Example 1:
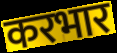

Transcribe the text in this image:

करभार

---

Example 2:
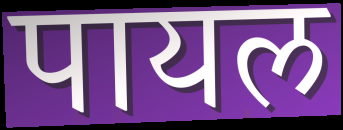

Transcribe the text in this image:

पायल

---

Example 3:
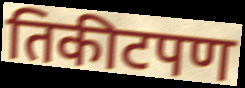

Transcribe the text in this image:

तिकीटपण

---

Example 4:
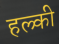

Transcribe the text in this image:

हल्की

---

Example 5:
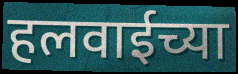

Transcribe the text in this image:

हलवाईच्या